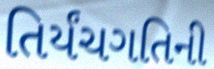
તિર્યંચગતિની